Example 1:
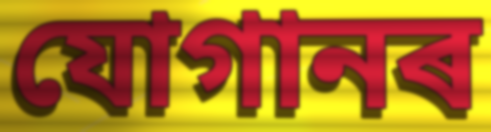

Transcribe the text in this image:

যোগানৰ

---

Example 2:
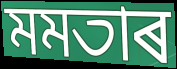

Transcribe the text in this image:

মমতাৰ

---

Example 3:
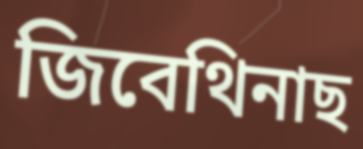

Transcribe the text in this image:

জিবেথিনাছ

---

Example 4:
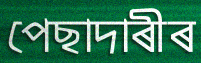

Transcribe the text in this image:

পেছাদাৰীৰ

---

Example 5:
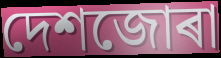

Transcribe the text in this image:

দেশজোৰা